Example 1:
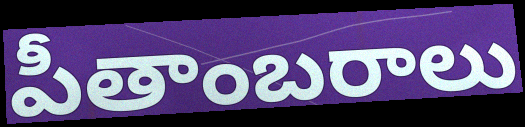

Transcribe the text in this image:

పీతాంబరాలు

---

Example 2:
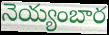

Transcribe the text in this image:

నెయ్యంబార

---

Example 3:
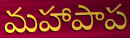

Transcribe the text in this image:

మహాపాప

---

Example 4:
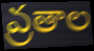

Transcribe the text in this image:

వ్రతాల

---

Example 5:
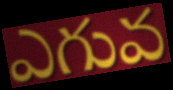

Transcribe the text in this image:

ఎగువ